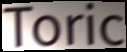
Toric